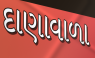
દાણાવાળા